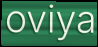
oviya